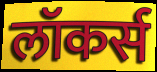
लॉकर्स